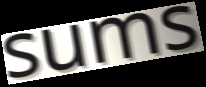
sums